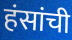
हंसांची